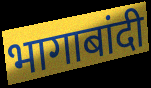
भागाबांदी